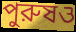
পুরুষও